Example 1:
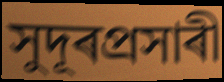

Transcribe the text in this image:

সুদূৰপ্ৰসাৰী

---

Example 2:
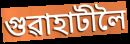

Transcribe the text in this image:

গুৱাহাটীলৈ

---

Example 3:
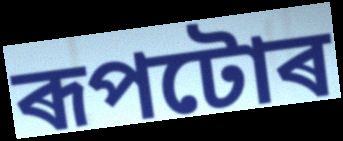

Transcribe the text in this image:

ৰূপটোৰ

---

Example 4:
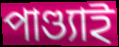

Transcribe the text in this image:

পাণ্ড্যাই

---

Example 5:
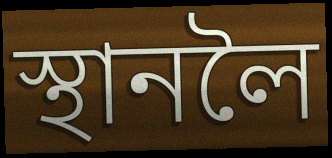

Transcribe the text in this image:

স্থানলৈ